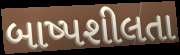
બાષ્પશીલતા